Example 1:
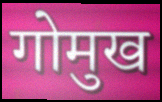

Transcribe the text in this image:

गोमुख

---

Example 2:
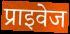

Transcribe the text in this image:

प्राइवेज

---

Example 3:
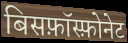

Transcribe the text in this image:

बिसफ़ॉस्फ़ोनेट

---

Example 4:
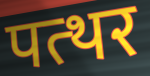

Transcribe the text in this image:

पत्‍थर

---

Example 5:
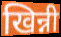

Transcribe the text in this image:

खिन्नी